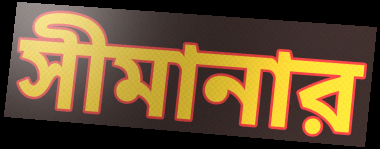
সীমানার